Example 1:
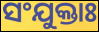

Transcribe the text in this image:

ସଂଯୁକ୍ତାଃ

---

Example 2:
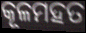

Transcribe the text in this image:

କୂଳମହତ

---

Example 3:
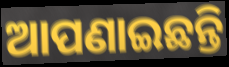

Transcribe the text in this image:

ଆପଣାଇଛନ୍ତି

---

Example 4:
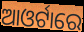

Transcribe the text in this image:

ଆଓର୍ଟାରେ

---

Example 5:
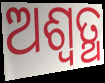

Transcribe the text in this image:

ଅଶ୍ବତ୍ଥ